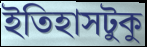
ইতিহাসটুকু